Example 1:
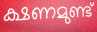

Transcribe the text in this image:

ക്ഷണമുണ്ട്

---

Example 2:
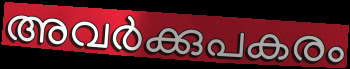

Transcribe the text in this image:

അവർക്കുപകരം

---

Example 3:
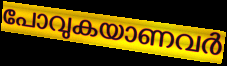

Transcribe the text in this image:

പോവുകയാണവർ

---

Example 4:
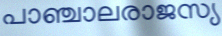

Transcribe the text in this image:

പാഞ്ചാലരാജസ്യ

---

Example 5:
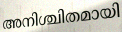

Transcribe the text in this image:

അനിശ്ചിതമായി